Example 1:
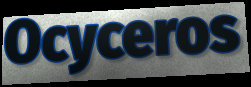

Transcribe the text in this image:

Ocyceros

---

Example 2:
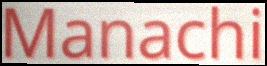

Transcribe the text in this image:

Manachi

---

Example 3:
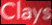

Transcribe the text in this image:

Clays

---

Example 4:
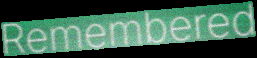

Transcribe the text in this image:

Remembered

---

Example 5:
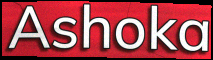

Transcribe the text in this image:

Ashoka